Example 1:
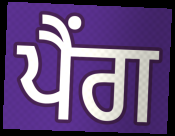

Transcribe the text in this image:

ਪੈਂਗ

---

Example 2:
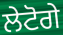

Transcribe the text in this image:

ਲੇਟੋਗੇ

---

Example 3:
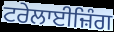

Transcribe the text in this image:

ਟਰੇਲਾਈਜ਼ਿੰਗ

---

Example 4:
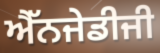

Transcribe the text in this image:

ਐੱਨਜੇਡੀਜੀ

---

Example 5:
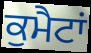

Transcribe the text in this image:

ਕੁਮੈਟਾਂ